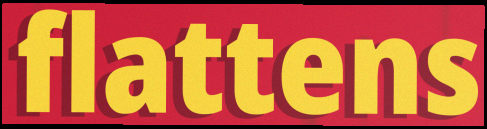
flattens